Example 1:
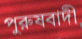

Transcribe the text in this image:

পুরুষবাদী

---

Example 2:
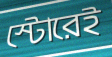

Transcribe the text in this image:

স্টোরেই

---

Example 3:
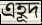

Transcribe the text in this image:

এহূদ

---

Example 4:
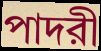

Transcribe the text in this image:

পাদরী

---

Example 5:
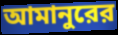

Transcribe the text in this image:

আমানুরের